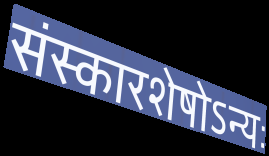
संस्कारशेषोऽन्यः